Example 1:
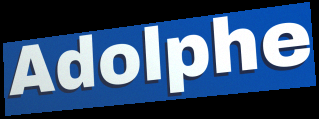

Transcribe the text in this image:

Adolphe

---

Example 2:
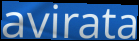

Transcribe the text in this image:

avirata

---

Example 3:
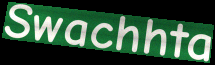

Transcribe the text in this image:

Swachhta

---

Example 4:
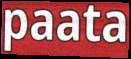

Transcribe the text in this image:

paata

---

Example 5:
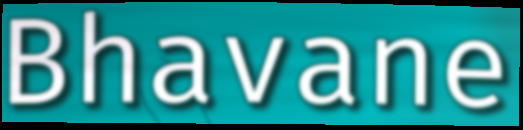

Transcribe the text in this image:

Bhavane